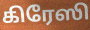
கிரேஸி